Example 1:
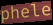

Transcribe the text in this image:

phele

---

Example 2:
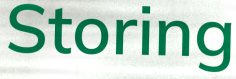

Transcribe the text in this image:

Storing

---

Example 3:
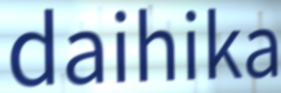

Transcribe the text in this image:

daihika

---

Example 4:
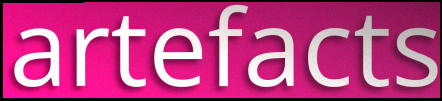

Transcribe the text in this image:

artefacts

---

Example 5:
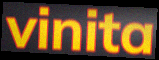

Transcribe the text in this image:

vinita